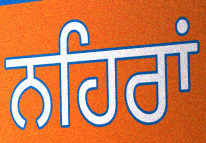
ਨਹਿਰਾਂ